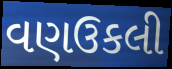
વણઉકલી